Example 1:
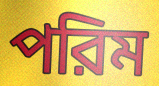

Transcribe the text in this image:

পরিম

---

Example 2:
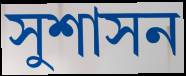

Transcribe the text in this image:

সুশাসন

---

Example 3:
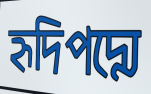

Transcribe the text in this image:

হৃদিপদ্মে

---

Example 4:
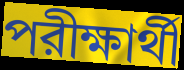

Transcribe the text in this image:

পরীক্ষার্থী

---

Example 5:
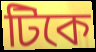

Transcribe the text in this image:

টিকে